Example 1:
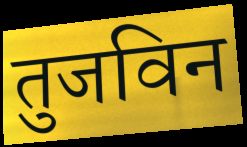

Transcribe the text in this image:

तुजविन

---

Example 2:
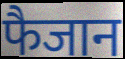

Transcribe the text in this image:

फैजान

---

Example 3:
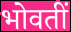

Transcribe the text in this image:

भोवतीं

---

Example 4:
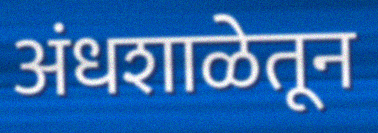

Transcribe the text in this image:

अंधशाळेतून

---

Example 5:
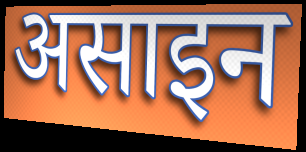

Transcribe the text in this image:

असाइन